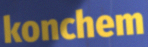
konchem